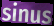
sinus